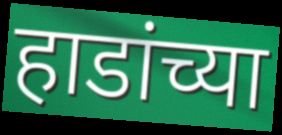
हाडांच्या